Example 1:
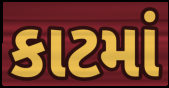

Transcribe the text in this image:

કાટમાં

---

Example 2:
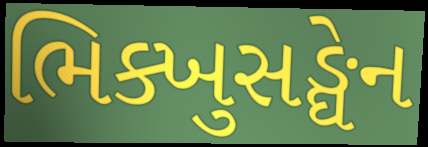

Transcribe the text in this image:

ભિક્ખુસઙ્ઘેન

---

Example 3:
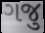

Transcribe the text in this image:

ગજુ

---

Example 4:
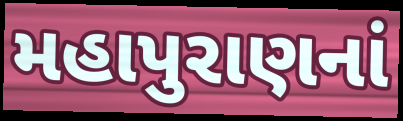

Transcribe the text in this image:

મહાપુરાણનાં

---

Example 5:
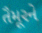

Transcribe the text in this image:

તૈમૂરને